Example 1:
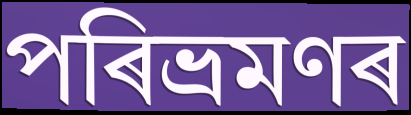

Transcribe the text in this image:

পৰিভ্ৰমণৰ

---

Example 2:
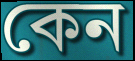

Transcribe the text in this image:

কেন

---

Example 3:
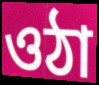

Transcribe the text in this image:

ওঠা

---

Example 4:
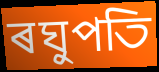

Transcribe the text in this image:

ৰঘুপতি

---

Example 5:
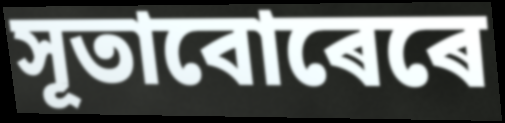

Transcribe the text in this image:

সূতাবোৰেৰে